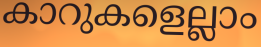
കാറുകളെല്ലാം